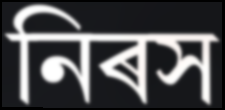
নিৰস